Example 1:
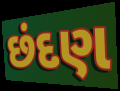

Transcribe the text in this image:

છંદણ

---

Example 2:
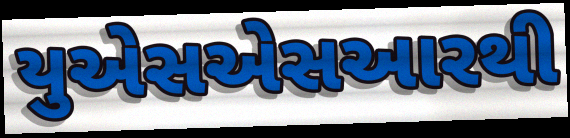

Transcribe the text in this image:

યુએસએસઆરથી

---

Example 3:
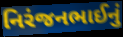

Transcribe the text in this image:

નિરંજનભાઈનું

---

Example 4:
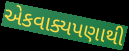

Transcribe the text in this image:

એકવાક્યપણાથી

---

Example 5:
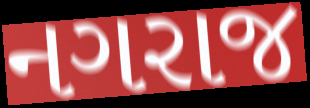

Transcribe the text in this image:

નગરાજ